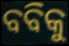
ବବିକୁ